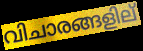
വിചാരങ്ങളില്